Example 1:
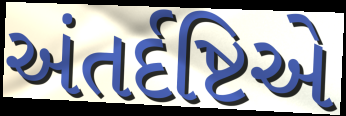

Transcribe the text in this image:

અંતર્દષ્ટિએ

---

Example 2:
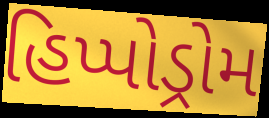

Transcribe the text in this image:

હિપ્પોડ્રોમ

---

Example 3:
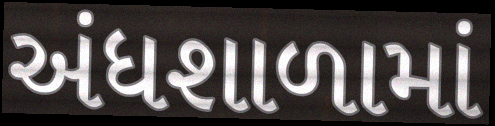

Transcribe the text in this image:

અંધશાળામાં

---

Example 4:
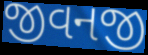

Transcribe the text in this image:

જીવનજી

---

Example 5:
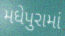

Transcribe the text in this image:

મધેપુરામાં